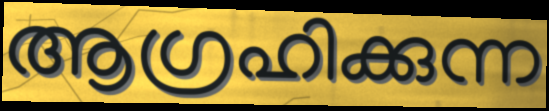
ആഗ്രഹിക്കുന്ന